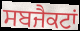
ਸਬਜੈਕਟਾਂ